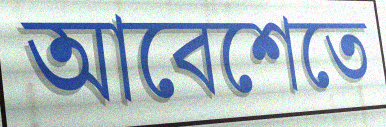
আবেশেতে